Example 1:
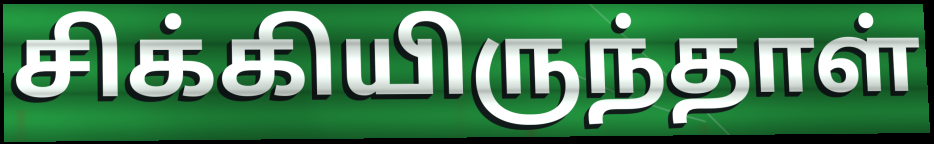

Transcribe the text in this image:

சிக்கியிருந்தாள்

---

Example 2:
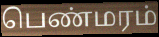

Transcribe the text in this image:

பெண்மரம்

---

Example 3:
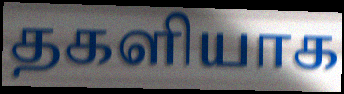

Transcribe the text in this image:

தகளியாக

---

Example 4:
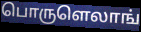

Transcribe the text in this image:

பொருளெலாங்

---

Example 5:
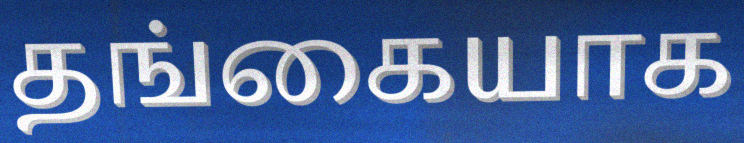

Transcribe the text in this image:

தங்கையாக